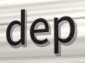
dep